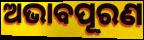
ଅଭାବପୂରଣ